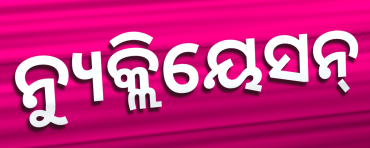
ନ୍ୟୁକ୍ଲିୟେସନ୍